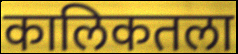
कालिकतला